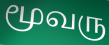
மூவரு